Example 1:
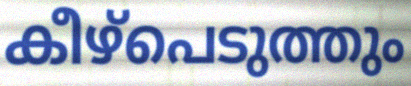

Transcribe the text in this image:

കീഴ്പെടുത്തും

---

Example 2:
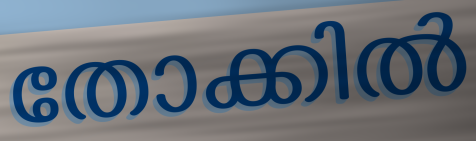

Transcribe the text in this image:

തോക്കിൽ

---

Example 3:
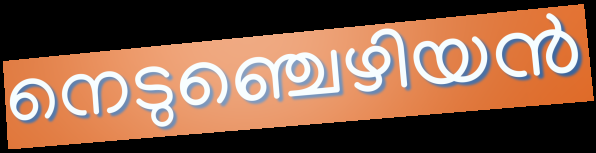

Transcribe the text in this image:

നെടുഞ്ചെഴിയൻ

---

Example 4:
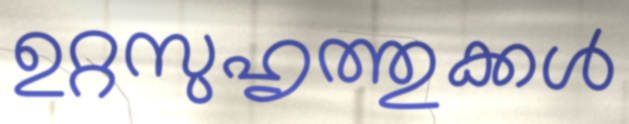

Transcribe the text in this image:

ഉറ്റസുഹൃത്തുക്കൾ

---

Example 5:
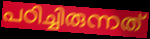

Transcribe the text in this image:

പഠിച്ചിരുന്നത്